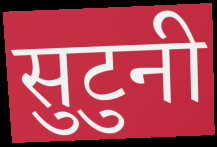
सुटुनी